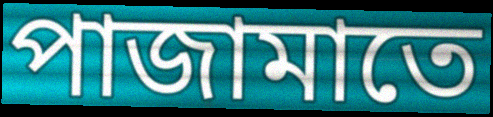
পাজামাতে